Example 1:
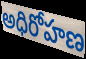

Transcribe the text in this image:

అధిరోహణ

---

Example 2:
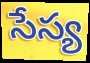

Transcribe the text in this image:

సేస్య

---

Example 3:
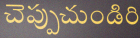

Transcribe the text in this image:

చెప్పుచుండిరి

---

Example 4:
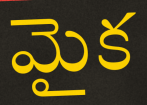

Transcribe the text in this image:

మైక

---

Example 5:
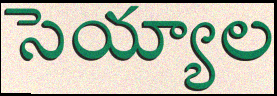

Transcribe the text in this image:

సెయ్యాల